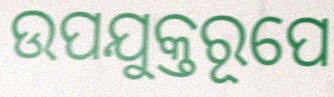
ଉପଯୁକ୍ତରୂପେ